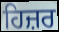
ਹਿਜ਼ਰ